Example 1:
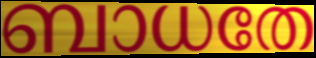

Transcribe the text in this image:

ബാധതേ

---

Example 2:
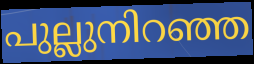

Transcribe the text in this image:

പുല്ലുനിറഞ്ഞ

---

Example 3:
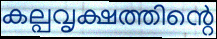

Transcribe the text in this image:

കല്പവൃക്ഷത്തിന്റെ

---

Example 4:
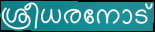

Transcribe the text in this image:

ശ്രീധരനോട്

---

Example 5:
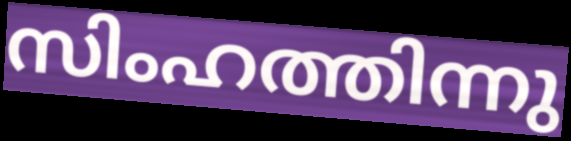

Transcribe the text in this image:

സിംഹത്തിന്നു